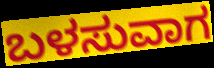
ಬಳಸುವಾಗ